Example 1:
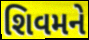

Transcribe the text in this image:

શિવમને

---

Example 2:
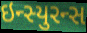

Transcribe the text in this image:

ઇન્સ્યુરન્સ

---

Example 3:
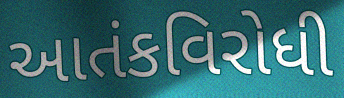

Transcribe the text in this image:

આતંકવિરોધી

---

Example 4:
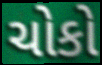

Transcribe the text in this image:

ચોકો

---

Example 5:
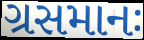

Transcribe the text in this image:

ગ્રસમાનઃ